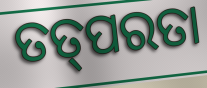
ତତ୍‌ପରତା